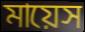
মায়েস